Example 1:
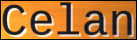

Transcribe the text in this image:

Celan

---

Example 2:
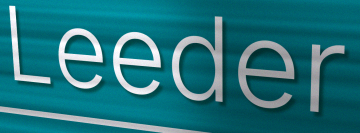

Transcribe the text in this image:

Leeder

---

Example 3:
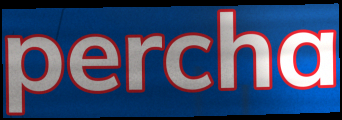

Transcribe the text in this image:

percha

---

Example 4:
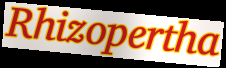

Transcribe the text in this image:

Rhizopertha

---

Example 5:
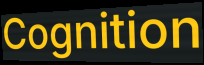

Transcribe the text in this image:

Cognition